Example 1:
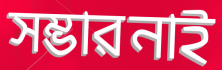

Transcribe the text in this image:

সম্ভাৱনাই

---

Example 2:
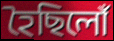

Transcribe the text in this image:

হৈছিলোঁ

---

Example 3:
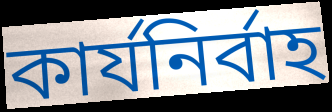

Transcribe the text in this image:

কাৰ্যনিৰ্বাহ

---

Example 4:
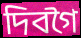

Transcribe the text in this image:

দিবগৈ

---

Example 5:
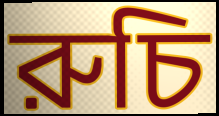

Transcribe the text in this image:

ৰুচি